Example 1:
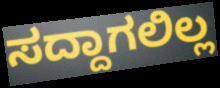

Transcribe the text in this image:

ಸದ್ದಾಗಲಿಲ್ಲ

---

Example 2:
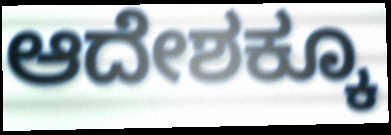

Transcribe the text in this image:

ಆದೇಶಕ್ಕೂ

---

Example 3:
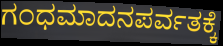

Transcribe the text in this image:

ಗಂಧಮಾದನಪರ್ವತಕ್ಕೆ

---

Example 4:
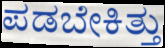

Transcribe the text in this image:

ಪಡಬೇಕಿತ್ತು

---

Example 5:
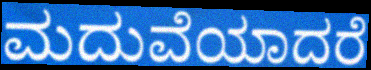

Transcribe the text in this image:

ಮದುವೆಯಾದರೆ